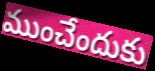
ముంచేందుకు